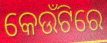
କେଉଁଟିରେ